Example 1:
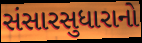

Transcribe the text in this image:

સંસારસુધારાનો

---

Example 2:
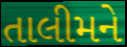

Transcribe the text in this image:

તાલીમને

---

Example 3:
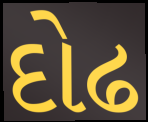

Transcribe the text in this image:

દોઢ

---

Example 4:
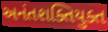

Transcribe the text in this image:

અનંતશક્તિયુક્ત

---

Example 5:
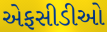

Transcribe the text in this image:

એફસીડીઓ